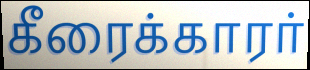
கீரைக்காரர்